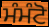
ਮੰਮੰਟੋ